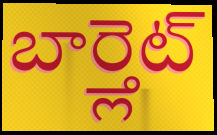
బార్త్లెట్